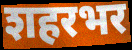
शहरभर